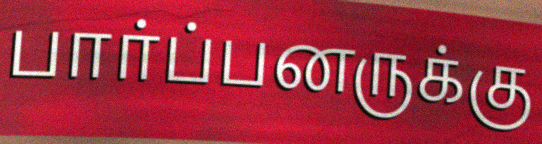
பார்ப்பனருக்கு